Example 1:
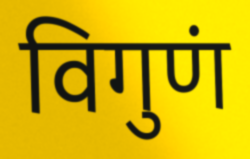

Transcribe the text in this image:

विगुणं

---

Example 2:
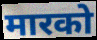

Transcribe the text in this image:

मारको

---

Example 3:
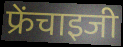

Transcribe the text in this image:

फ्रेंचाइजी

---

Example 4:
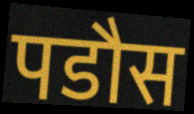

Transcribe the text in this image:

पडौस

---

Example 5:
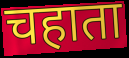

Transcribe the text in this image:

चहाता